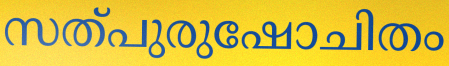
സത്പുരുഷോചിതം